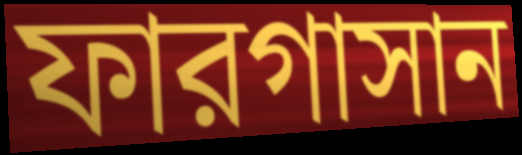
ফারগাসান